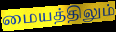
மையத்திலும்